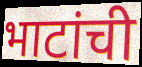
भाटांची